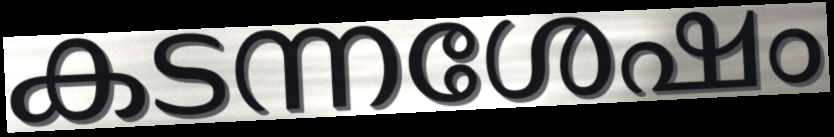
കടന്നശേഷം